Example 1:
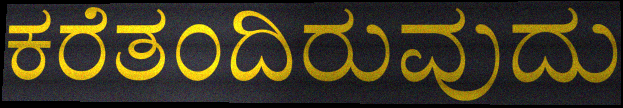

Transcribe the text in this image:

ಕರೆತಂದಿರುವುದು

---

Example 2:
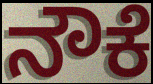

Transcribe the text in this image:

ನೌಕೆ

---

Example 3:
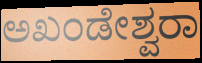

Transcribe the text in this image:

ಅಖಂಡೇಶ್ವರಾ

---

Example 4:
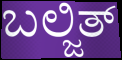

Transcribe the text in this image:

ಬಲ್ಜಿತ್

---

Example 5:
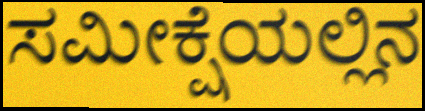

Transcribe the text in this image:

ಸಮೀಕ್ಷೆಯಲ್ಲಿನ